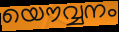
യൌവ്വനം